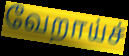
வேறாய்ச்